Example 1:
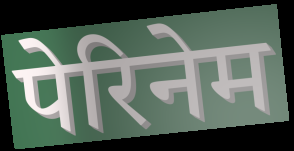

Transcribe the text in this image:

पेरिनेम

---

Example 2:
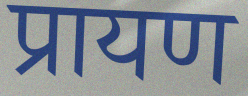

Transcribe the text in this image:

प्रायण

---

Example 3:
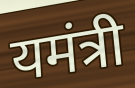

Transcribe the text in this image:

यमंत्री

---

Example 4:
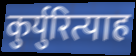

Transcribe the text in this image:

कुर्युरित्याह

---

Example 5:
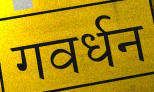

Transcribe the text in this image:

गवर्धन